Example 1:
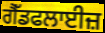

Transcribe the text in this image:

ਗੈੱਡਫਲਾਈਜ਼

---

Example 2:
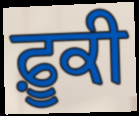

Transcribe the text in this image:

ਫ਼ੂਕੀ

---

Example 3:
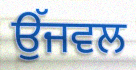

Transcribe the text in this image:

ਉੱਜਵਲ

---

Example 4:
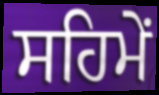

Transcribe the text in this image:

ਸਹਿਮੇਂ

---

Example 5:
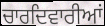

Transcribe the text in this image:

ਚਾਰਦਿਵਾਰੀਆਂ